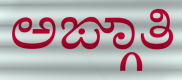
ಅಙ್ಗಾತಿ